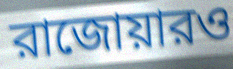
রাজোয়ারও